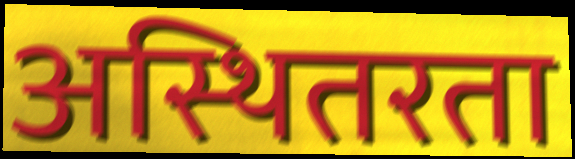
अस्थितरता